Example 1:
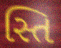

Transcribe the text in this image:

સ્તિ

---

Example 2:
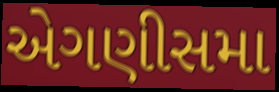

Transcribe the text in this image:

એગણીસમા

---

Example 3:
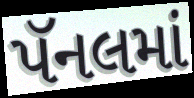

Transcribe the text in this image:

પૅનલમાં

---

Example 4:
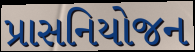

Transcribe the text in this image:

પ્રાસનિયોજન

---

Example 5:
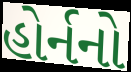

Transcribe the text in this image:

હોર્નનો